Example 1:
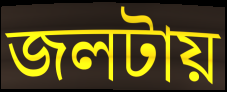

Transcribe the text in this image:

জলটায়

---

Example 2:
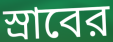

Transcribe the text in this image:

স্রাবের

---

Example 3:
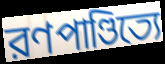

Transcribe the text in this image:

রণপাণ্ডিত্যে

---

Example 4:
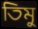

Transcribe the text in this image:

তিমু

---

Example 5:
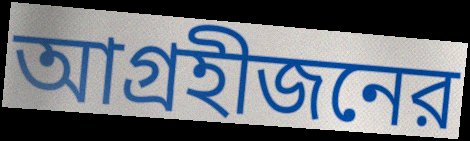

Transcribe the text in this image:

আগ্রহীজনের